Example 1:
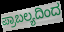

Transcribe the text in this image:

ಪ್ರಾಬಲ್ಯದಿಂದ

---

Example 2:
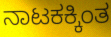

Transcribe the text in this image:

ನಾಟಕಕ್ಕಿಂತ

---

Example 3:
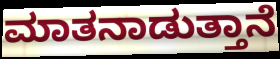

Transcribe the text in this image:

ಮಾತನಾಡುತ್ತಾನೆ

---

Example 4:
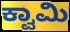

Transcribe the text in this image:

ಕ್ವಾಮಿ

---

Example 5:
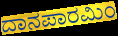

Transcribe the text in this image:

ದಾನಪಾರಮಿಂ